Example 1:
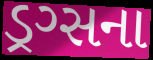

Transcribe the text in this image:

ડ્રગ્સના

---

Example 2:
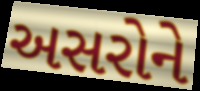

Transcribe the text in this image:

અસરોને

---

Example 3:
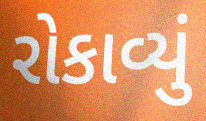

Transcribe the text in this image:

રોકાવ્યું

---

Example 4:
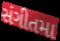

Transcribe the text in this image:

સંગીતમા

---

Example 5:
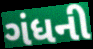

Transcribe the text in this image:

ગંધની